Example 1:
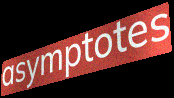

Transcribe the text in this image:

asymptotes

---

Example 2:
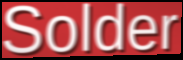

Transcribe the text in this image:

Solder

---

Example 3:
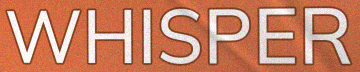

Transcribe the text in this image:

WHISPER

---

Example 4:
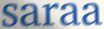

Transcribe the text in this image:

saraa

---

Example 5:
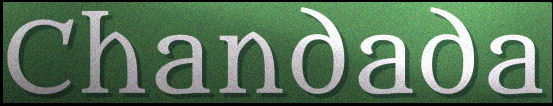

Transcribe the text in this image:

Chandada